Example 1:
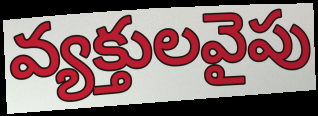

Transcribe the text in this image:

వ్యక్తులవైపు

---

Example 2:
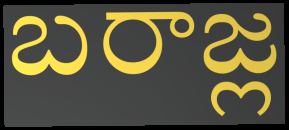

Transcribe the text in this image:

బరాజ్ల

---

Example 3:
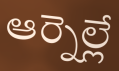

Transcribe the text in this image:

ఆర్నెల్లే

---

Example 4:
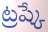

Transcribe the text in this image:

ట్రష్కే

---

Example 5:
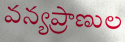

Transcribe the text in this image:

వన్యప్రాణుల